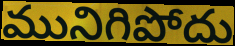
మునిగిపోదు